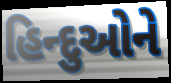
હિન્દુઓને